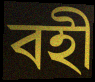
বহী